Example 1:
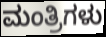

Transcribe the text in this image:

ಮಂತ್ರಿಗಳು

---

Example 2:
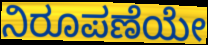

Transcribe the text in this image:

ನಿರೂಪಣೆಯೇ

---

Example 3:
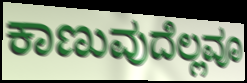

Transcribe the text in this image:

ಕಾಣುವುದೆಲ್ಲವೂ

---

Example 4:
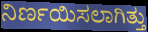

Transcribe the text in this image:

ನಿರ್ಣಯಿಸಲಾಗಿತ್ತು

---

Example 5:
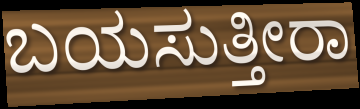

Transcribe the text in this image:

ಬಯಸುತ್ತೀರಾ